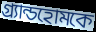
গ্র্যান্ডহোমকে